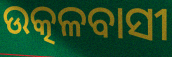
ଉତ୍କଳବାସୀ